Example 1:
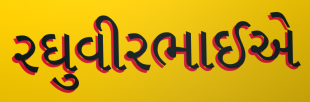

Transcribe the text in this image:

રઘુવીરભાઈએ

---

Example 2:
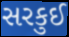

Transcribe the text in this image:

સરકુઈ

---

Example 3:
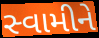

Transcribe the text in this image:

સ્વામીને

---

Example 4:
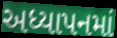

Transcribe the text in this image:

અધ્યાપનમાં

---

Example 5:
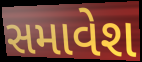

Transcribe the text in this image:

સમાવેશ